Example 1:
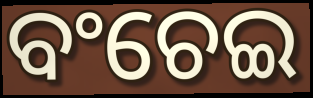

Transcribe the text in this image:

ବଂଚେଇ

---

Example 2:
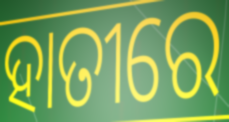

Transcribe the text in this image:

ହାତୀରେ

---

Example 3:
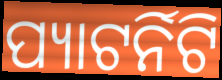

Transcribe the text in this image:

ପ୍ୟାଟର୍ନିଟି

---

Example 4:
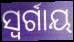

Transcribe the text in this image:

ସ୍ବର୍ଗାୟ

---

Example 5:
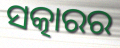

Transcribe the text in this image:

ସତ୍କାରର